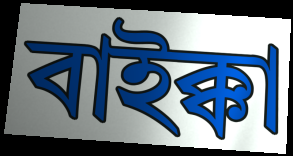
বাইক্কা